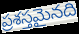
ప్రశస్తమైనది